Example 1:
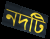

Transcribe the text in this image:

নদটি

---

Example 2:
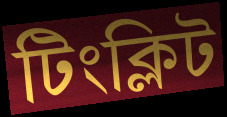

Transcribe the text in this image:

টিংক্লিট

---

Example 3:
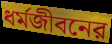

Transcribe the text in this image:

ধর্মজীবনের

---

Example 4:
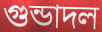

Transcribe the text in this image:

গুন্ডাদল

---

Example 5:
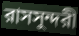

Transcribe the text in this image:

রাসসুন্দরী